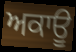
ਅਕਾਊ